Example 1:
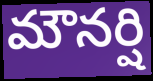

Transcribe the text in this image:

మౌనర్షి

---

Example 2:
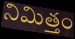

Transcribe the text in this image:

నిమిత్తం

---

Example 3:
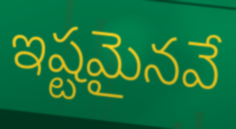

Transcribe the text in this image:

ఇష్టమైనవే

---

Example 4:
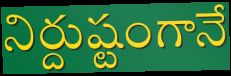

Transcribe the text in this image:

నిర్దుష్టంగానే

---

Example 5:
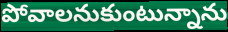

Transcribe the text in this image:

పోవాలనుకుంటున్నాను